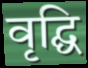
वृद्घि